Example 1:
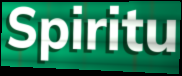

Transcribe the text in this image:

Spiritu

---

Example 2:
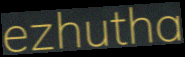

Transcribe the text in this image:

ezhutha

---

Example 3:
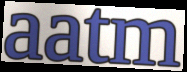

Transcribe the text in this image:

aatm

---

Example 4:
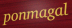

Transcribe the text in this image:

ponmagal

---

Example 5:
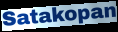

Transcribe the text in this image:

Satakopan